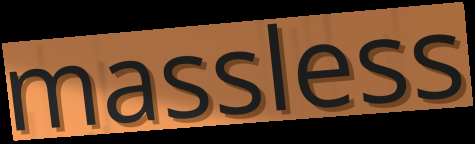
massless